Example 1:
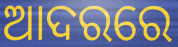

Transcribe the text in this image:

ଆଦରରେ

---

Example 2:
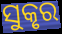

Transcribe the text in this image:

ସୁକୃର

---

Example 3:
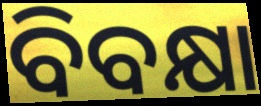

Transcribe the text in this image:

ବିବକ୍ଷା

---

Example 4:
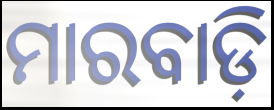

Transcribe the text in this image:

ମାରବାଡ଼ି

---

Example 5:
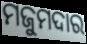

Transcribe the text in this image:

ମଜୁମଦାର